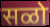
सळो